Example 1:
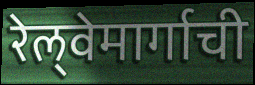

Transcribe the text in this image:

रेल्वेमार्गाची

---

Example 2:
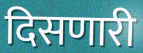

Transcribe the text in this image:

दिसणारी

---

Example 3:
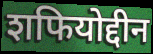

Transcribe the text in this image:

शफियोद्दीन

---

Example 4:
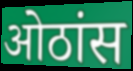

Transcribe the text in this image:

ओठांस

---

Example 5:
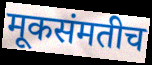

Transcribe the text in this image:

मूकसंमतीच